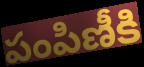
పంపిణీకి